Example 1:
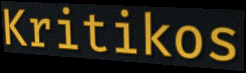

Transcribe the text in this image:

Kritikos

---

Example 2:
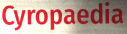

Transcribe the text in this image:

Cyropaedia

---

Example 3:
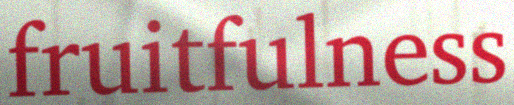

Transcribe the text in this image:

fruitfulness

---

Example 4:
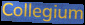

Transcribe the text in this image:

Collegium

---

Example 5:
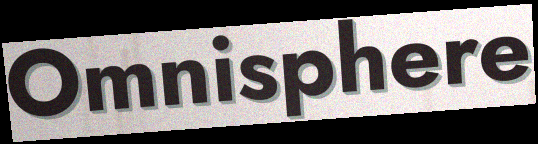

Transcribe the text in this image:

Omnisphere